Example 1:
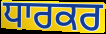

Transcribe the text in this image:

ਧਾਰਕਰ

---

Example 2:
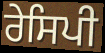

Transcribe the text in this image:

ਰੇਸਿਪੀ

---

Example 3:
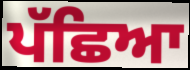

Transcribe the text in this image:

ਪੱਛਿਆ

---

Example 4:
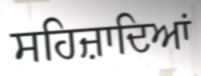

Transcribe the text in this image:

ਸਹਿਜ਼ਾਦਿਆਂ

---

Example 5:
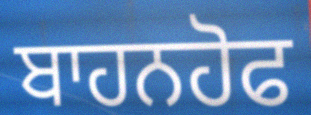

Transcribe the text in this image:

ਬਾਹਨਹੋਫ